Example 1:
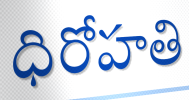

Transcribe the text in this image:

ధిరోహతి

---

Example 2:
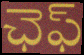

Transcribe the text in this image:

ఛెఫ్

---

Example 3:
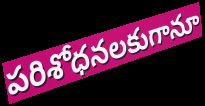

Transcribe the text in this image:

పరిశోధనలకుగానూ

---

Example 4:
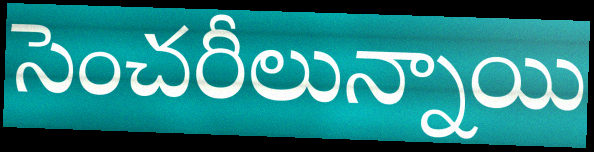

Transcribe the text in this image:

సెంచరీలున్నాయి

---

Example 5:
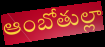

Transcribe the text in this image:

ఆంబోతుల్లా